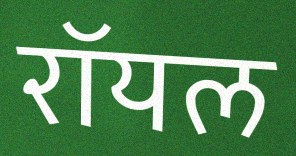
रॉयल